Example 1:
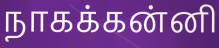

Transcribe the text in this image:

நாகக்கன்னி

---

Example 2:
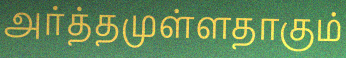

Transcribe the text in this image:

அர்த்தமுள்ளதாகும்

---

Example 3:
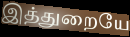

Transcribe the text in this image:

இத்துறையே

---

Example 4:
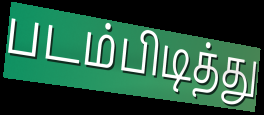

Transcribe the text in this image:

படம்பிடித்து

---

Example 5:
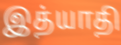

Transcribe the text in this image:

இத்யாதி